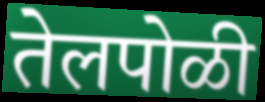
तेलपोळी